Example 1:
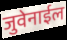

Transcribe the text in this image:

जुवेनाईल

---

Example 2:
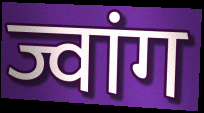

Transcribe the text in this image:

ज्वांग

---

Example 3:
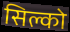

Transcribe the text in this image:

सिल्को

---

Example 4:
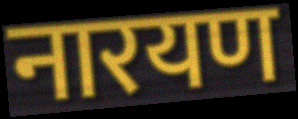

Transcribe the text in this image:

नारयण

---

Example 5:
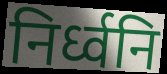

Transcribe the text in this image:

निर्ध्वनि